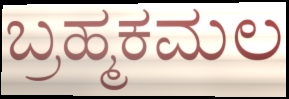
ಬ್ರಹ್ಮಕಮಲ